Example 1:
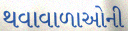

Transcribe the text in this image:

થવાવાળાઓની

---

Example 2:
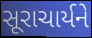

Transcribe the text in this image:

સૂરાચાર્યને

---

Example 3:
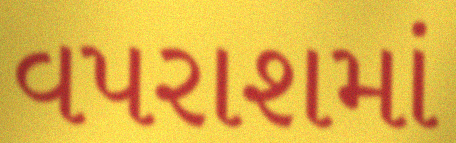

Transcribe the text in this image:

વપરાશમાં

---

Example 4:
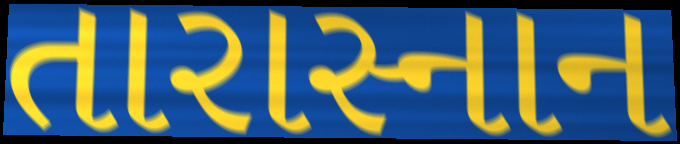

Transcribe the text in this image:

તારાસ્નાન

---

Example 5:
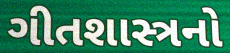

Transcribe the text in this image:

ગીતશાસ્ત્રનો